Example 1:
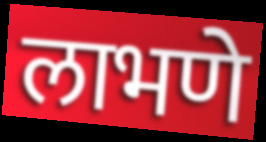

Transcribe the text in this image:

लाभणे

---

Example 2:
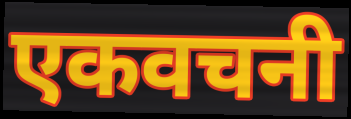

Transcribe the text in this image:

एकवचनी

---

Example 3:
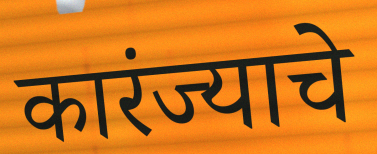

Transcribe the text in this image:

कारंज्याचे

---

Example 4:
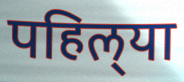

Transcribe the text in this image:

पहिल्या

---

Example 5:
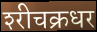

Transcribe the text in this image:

श्रीचक्रधर